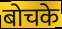
बोचके